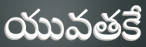
యువతకే